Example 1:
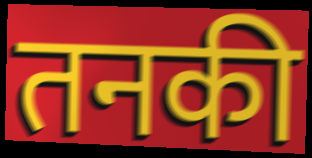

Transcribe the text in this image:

तनकी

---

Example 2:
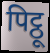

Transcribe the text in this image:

पिट्ठू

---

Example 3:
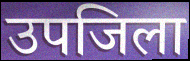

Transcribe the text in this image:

उपजिला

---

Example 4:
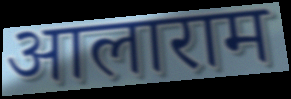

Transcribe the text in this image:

आलाराम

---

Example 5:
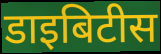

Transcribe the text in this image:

डाइबिटीस